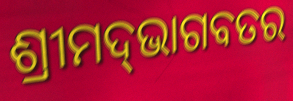
ଶ୍ରୀମଦ୍‌ଭାଗବତର